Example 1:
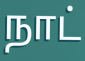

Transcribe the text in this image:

நாட்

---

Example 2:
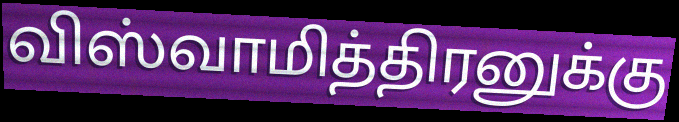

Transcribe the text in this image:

விஸ்வாமித்திரனுக்கு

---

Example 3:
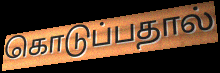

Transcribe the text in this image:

கொடுப்பதால்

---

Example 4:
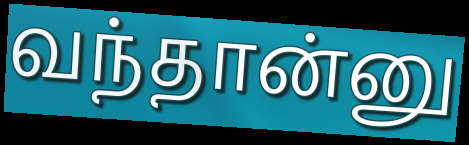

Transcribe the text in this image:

வந்தான்னு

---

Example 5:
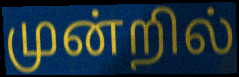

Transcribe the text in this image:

முன்றில்